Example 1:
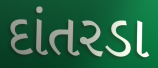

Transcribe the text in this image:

દાંતરડા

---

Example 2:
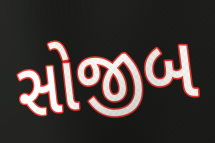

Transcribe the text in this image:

સોજીબ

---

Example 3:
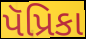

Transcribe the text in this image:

પૅપ્રિકા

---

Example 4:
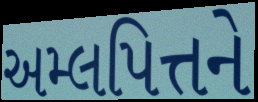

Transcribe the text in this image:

અમ્લપિત્તને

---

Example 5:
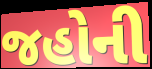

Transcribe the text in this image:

જહોની